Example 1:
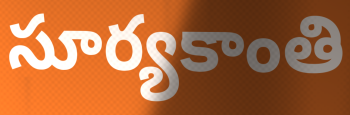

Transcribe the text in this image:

సూర్యకాంతి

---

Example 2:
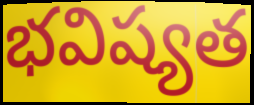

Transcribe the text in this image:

భవిష్యత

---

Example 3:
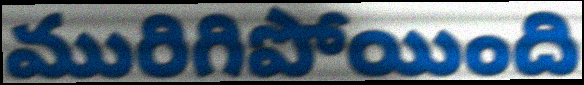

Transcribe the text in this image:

మురిగిపోయింది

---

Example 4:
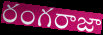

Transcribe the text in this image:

రంగరాజా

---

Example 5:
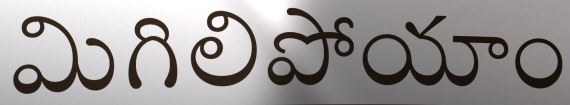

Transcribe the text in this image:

మిగిలిపోయాం